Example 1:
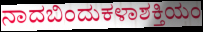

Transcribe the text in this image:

ನಾದಬಿಂದುಕಳಾಶಕ್ತಿಯಂ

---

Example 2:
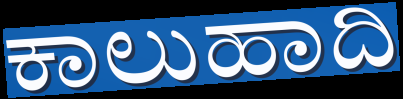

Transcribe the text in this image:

ಕಾಲುಹಾದಿ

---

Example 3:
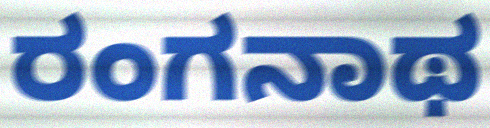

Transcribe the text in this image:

ರಂಗನಾಥ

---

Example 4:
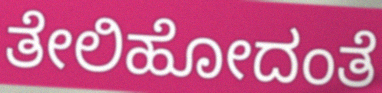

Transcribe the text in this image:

ತೇಲಿಹೋದಂತೆ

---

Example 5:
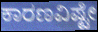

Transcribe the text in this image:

ಕಾರಣವಿಷ್ಟೇ